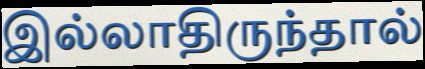
இல்லாதிருந்தால்